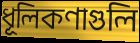
ধূলিকণাগুলি